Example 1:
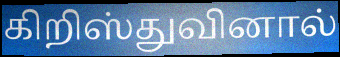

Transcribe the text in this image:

கிறிஸ்துவினால்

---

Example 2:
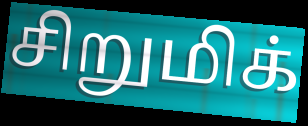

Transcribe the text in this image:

சிறுமிக்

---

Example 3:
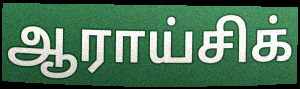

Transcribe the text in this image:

ஆராய்சிக்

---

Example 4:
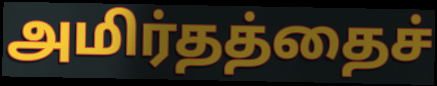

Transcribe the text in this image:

அமிர்தத்தைச்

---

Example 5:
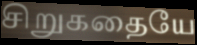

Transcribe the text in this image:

சிறுகதையே